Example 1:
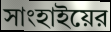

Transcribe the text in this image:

সাংহাইয়ের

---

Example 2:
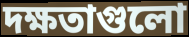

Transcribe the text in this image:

দক্ষতাগুলো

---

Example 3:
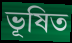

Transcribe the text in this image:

ভূষিত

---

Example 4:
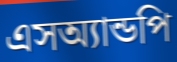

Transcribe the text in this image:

এসঅ্যান্ডপি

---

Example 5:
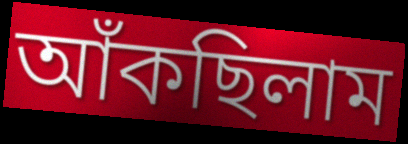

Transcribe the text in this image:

আঁকছিলাম